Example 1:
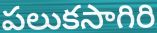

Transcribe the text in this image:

పలుకసాగిరి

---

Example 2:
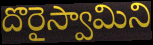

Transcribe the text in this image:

దొరైస్వామిని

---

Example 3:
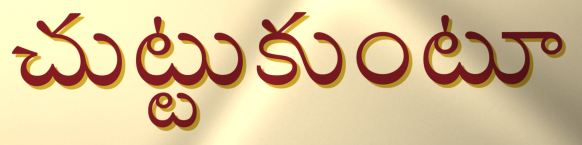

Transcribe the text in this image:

చుట్టుకుంటూ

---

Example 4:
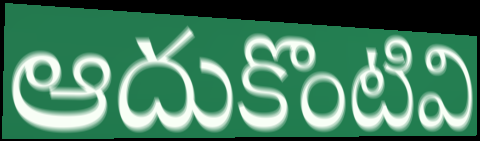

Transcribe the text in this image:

ఆదుకొంటివి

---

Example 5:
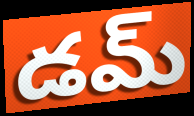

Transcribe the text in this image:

డమ్